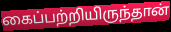
கைப்பற்றியிருந்தான்